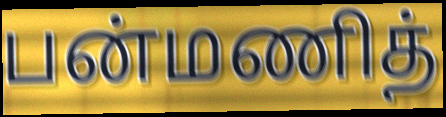
பன்மணித்